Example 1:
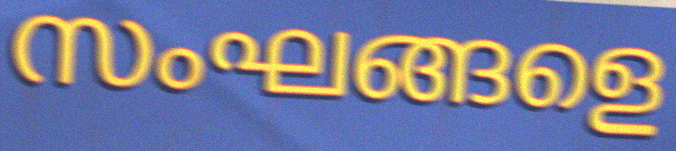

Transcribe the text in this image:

സംഘങ്ങളെ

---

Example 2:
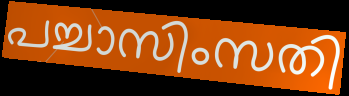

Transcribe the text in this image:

പച്ചാസിംസതി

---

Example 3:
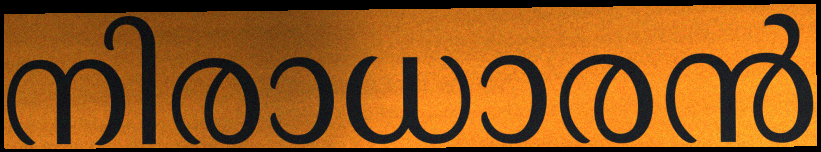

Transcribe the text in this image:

നിരാധാരൻ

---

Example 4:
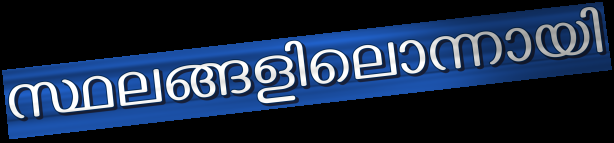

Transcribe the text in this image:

സ്ഥലങ്ങളിലൊന്നായി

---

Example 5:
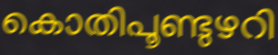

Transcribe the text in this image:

കൊതിപൂണ്ടുഴറി